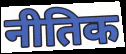
नीतिक